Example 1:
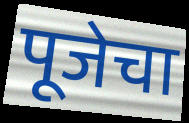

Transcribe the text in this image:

पूजेचा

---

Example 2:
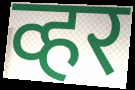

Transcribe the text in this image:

व्हर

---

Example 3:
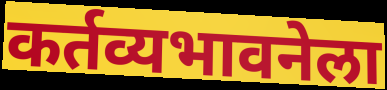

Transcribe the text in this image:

कर्तव्यभावनेला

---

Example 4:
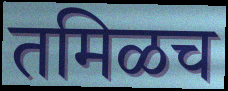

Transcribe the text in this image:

तमिळच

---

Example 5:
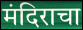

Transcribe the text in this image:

मंदिराचा